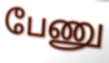
பேணு